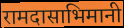
रामदासाभिमानी